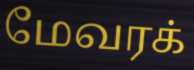
மேவரக்